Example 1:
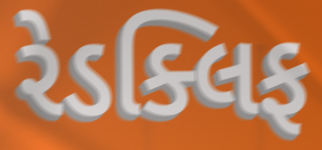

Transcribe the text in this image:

રેડક્લિફ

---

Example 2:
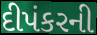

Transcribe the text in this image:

દીપંકરની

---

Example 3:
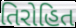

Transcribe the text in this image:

તિરોહિત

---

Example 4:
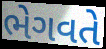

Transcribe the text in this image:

ભેગવતે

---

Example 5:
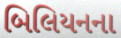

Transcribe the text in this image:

બિલિયનના